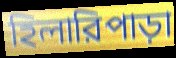
হিলারিপাড়া